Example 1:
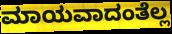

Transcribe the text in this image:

ಮಾಯವಾದಂತೆಲ್ಲ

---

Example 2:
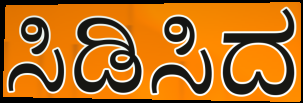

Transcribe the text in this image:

ಸಿಡಿಸಿದ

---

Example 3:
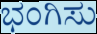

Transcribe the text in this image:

ಭಂಗಿಸು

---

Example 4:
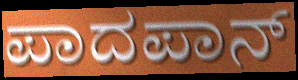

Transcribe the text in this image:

ಪಾದಪಾನ್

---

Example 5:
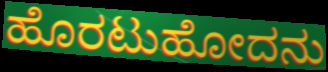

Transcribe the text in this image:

ಹೊರಟುಹೋದನು